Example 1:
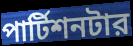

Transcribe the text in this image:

পার্টিশনটার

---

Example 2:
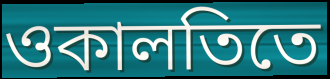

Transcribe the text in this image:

ওকালতিতে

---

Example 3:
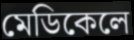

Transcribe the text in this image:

মেডিকেলে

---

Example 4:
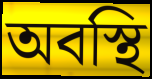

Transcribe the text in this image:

অবস্থি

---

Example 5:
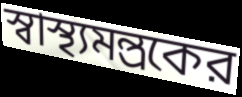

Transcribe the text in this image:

স্বাস্থ্যমন্ত্রকের